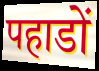
पहाडों